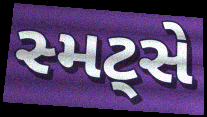
સ્મટ્સે